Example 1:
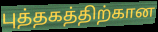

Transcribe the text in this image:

புத்தகத்திற்கான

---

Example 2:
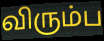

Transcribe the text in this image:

விரும்ப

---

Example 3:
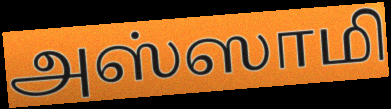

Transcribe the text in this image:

அஸ்ஸாமி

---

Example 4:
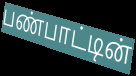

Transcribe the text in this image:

பண்பாட்டின்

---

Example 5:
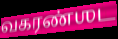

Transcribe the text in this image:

வகரண்ஶட